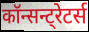
कॉन्सन्ट्रेटर्स